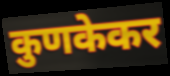
कुणकेकर